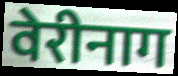
वेरीनाग